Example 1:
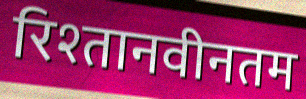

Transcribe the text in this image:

रिश्तानवीनतम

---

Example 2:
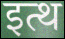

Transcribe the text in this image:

इत्थ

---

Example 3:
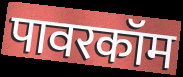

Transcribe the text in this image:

पावरकॉम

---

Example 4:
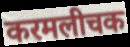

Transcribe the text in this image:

करमलीचक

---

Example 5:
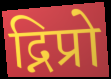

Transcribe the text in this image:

द्निप्रो